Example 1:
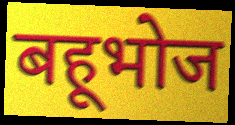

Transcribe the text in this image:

बहूभोज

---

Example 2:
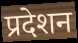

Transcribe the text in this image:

प्रदेशन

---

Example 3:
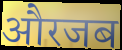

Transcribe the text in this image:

औरजब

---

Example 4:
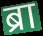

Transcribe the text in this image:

ब्रा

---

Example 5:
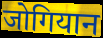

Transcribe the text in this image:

जोगियान